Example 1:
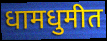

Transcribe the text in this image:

धामधुमीत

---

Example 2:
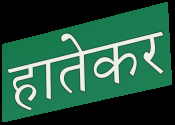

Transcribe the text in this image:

हातेकर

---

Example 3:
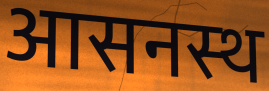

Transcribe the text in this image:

आसनस्थ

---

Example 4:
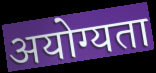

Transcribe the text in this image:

अयोग्यता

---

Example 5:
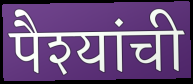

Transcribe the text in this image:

पैश्यांची